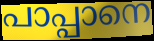
പാപ്പാനെ